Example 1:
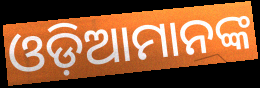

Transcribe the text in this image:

ଓଡ଼ିଆମାନଙ୍କ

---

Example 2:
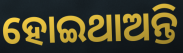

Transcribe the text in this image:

ହୋଇଥାଅନ୍ତି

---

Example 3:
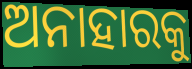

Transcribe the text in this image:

ଅନାହାରକୁ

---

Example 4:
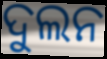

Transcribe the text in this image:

ଦୁଲନ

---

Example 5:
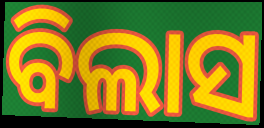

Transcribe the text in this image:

ବିଲାସ